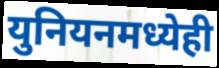
युनियनमध्येही